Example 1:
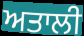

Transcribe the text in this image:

ਅਤਾਲੀ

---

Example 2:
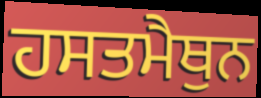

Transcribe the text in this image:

ਹਸਤਮੈਥੁਨ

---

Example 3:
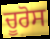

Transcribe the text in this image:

ਚੂਰੋਸ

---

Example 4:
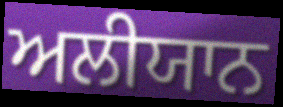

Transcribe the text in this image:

ਅਲੀਯਾਨ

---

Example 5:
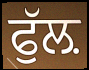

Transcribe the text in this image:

ਫੁੱਲ਼